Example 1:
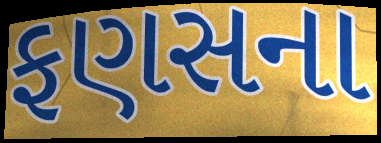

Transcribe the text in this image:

ફણસના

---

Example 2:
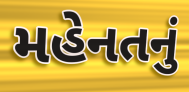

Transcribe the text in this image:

મહેનતનું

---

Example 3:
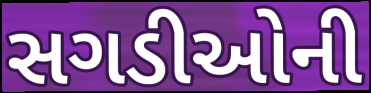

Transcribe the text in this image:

સગડીઓની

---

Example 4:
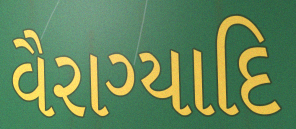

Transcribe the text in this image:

વૈરાગ્યાદિ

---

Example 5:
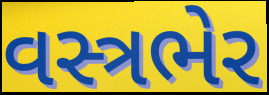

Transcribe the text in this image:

વસ્ત્રભેર